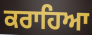
ਕਰਾਹਿਆ